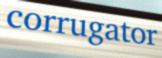
corrugator